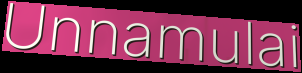
Unnamulai